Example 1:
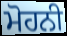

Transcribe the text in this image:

ਮੋਹਨੀ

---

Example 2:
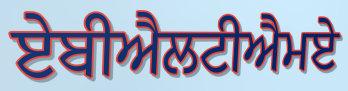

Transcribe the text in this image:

ਏਬੀਐਲਟੀਐਮਏ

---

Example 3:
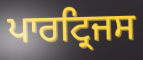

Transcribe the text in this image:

ਪਾਰਟ੍ਰਿਜਸ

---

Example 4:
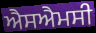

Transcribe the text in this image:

ਐਸਐਮਸੀ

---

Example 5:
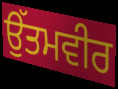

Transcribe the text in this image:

ਉੱਤਮਵੀਰ